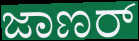
ಜಾಣರ್